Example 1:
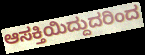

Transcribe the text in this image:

ಆಸಕ್ತಿಯಿದ್ದುದರಿಂದ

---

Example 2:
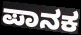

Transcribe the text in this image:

ಪಾನಕ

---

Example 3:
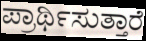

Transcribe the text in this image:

ಪ್ರಾರ್ಥಿಸುತ್ತಾರೆ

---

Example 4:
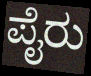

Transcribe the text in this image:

ಪೈರು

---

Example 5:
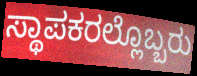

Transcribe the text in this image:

ಸ್ಥಾಪಕರಲ್ಲೊಬ್ಬರು